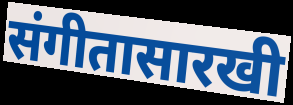
संगीतासारखी